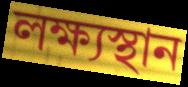
লক্ষ্যস্থান